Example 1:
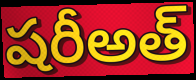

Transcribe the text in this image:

షరీఅత్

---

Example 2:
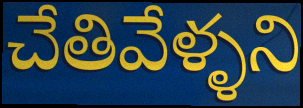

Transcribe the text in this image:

చేతివేళ్ళని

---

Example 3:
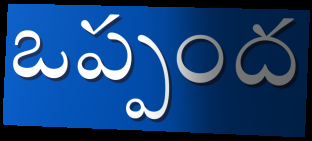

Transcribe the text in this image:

ఒప్పంద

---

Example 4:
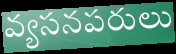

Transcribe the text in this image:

వ్యసనపరులు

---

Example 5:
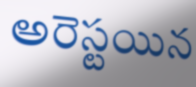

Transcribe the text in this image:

అరెస్టయిన